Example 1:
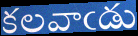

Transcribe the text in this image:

కలవాఁడు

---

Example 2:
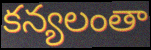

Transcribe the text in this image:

కన్యలంతా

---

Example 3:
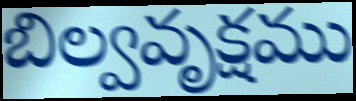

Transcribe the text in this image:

బిల్వవృక్షము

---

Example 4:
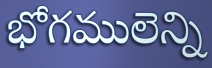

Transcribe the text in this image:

భోగములెన్ని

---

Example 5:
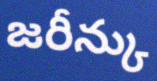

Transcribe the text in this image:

జరీన్కు